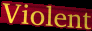
Violent